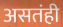
असतंही